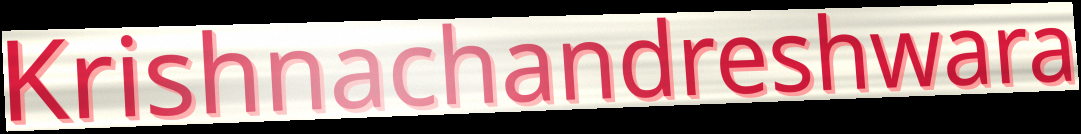
Krishnachandreshwara